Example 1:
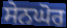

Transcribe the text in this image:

ਸੇਨਘੋਰ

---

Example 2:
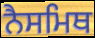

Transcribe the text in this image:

ਨੈਸਮਿਥ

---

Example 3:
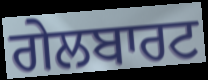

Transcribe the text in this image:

ਗੇਲਬਾਰਟ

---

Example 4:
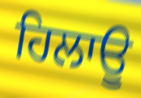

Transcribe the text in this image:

ਹਿਲਾਊ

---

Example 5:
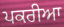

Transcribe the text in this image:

ਪਕਰੀਆ